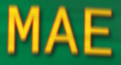
MAE